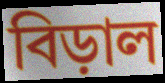
বিড়াল